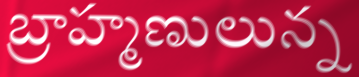
బ్రాహ్మణులున్న